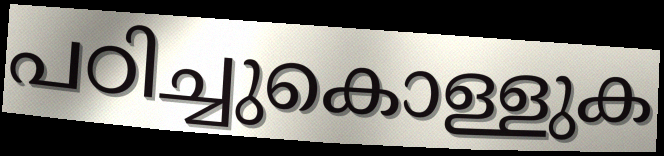
പഠിച്ചുകൊള്ളുക